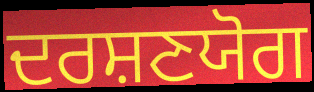
ਦਰਸ਼ਣਯੋਗ